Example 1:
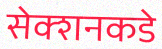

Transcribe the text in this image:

सेक्शनकडे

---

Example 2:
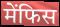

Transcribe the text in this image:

मेंफिस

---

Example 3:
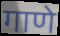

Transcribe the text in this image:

गाणे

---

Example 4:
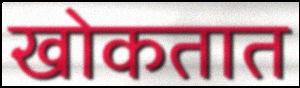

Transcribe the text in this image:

खोकतात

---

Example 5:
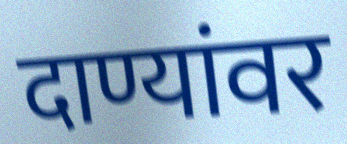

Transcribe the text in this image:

दाण्यांवर